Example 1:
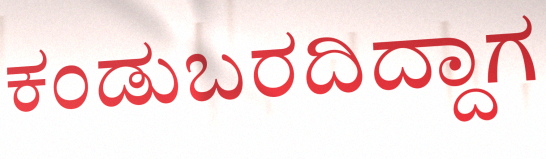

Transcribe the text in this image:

ಕಂಡುಬರದಿದ್ದಾಗ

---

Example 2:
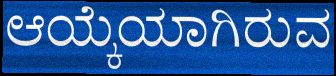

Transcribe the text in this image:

ಆಯ್ಕೆಯಾಗಿರುವ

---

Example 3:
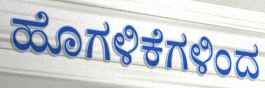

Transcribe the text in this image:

ಹೊಗಳಿಕೆಗಳಿಂದ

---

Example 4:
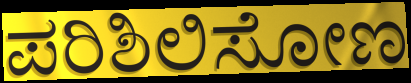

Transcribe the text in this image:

ಪರಿಶಿಲಿಸೋಣ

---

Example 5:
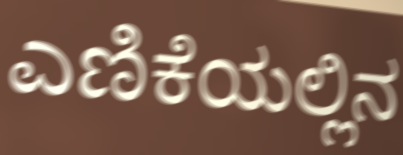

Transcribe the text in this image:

ಎಣಿಕೆಯಲ್ಲಿನ